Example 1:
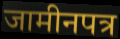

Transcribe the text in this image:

जामीनपत्र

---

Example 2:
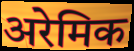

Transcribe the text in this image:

अरेमिक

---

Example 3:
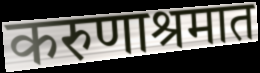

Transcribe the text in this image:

करुणाश्रमात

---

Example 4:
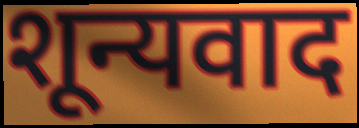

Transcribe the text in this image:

शून्यवाद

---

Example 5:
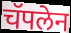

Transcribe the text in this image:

चॅपलेन